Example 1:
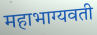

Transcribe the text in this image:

महाभाग्यवती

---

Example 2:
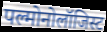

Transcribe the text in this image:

पल्मोनोलॉजिस्ट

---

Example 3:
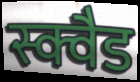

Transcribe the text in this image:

स्क्वैड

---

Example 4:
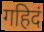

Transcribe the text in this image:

गहिदं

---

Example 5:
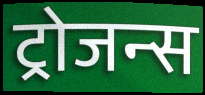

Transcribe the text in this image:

ट्रोजन्स